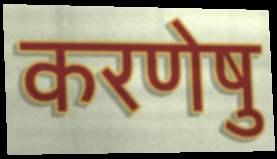
करणेषु